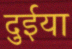
दुईया